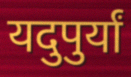
यदुपुर्यां